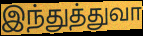
இந்துத்துவா